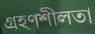
গ্রহণশীলতা